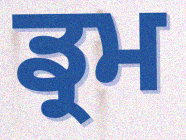
ਡ੍ਰਮ